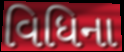
વિધિના